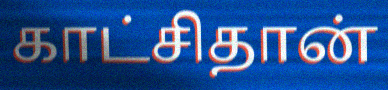
காட்சிதான்